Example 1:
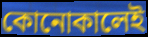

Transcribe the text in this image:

কোনোকালেই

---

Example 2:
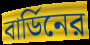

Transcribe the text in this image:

বার্ডিনের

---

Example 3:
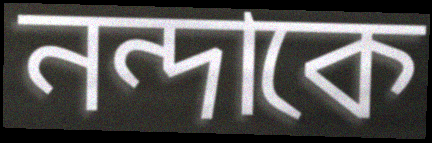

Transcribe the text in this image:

নন্দাকে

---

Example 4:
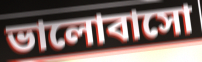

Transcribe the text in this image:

ভালোবাসো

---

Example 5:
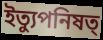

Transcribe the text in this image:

ইত্যুপনিষত্